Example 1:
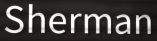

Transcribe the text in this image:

Sherman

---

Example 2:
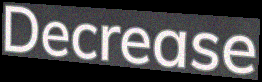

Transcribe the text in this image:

Decrease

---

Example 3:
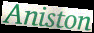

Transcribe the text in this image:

Aniston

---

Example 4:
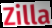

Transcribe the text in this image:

Zilla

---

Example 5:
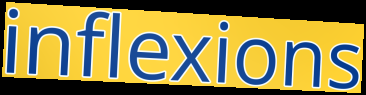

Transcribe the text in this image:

inflexions